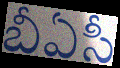
బీఏసీ